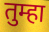
तुम्हा